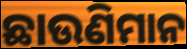
ଛାଉଣିମାନ